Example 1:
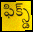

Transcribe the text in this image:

ఫిక్స్డ్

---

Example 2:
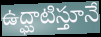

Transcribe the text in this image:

ఉద్ఘాటిస్తూనే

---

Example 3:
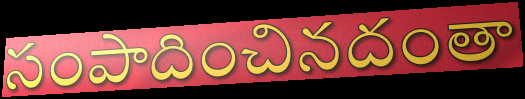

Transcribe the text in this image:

సంపాదించినదంతా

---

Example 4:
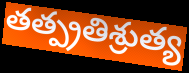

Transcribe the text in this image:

తత్ప్రతిశ్రుత్య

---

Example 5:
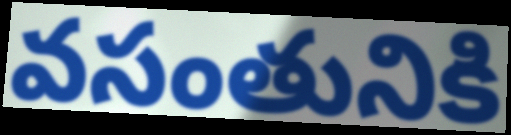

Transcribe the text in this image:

వసంతునికి